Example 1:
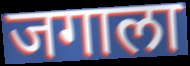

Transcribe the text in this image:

जगाला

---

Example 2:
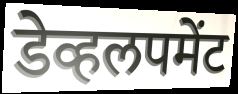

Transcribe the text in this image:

डेव्हलपमेंट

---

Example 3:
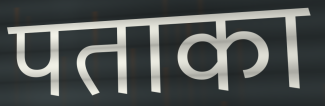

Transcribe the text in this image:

पताका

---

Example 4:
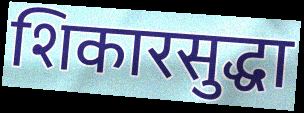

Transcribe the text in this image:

शिकारसुद्धा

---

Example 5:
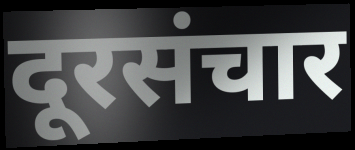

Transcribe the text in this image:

दूरसंचार